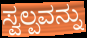
ಸ್ವಲ್ಪವನ್ನು